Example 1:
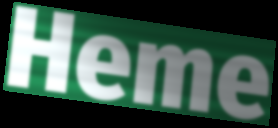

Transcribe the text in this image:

Heme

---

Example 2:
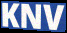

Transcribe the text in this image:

KNV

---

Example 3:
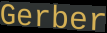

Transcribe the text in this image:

Gerber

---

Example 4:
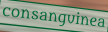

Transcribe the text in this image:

consanguinea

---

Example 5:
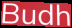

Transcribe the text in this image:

Budh